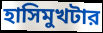
হাসিমুখটার